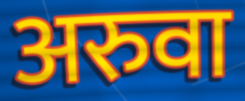
अरुवा